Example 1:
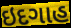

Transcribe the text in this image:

ઇદગાહ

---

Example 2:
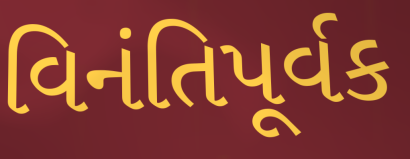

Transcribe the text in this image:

વિનંતિપૂર્વક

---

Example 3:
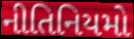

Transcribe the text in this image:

નીતિનિયમો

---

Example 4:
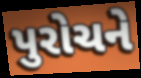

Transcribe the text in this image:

પુરોચને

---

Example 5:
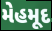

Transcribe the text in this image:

મેહમૂદ